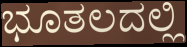
ಭೂತಲದಲ್ಲಿ